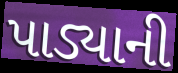
પાડ્યાની